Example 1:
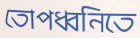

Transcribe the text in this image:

তোপধ্বনিতে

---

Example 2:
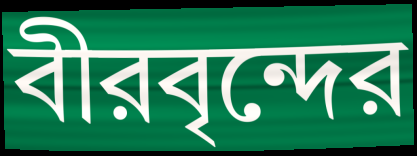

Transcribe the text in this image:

বীরবৃন্দের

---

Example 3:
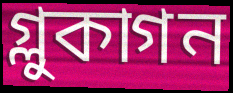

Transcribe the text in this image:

গ্লুকাগন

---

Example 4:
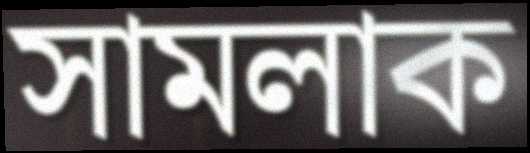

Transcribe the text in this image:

সামলাক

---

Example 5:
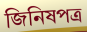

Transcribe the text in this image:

জিনিষপত্র